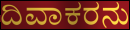
ದಿವಾಕರನು